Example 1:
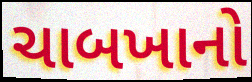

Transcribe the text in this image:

ચાબખાનો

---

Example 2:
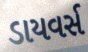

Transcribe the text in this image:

ડાયવર્સ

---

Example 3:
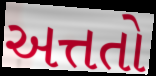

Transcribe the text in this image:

અત્તતો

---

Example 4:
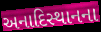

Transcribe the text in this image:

અનાદિસ્થાનના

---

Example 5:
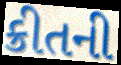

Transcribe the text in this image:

ક્રીતની